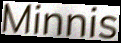
Minnis